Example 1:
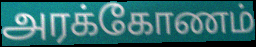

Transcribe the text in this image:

அரக்கோணம்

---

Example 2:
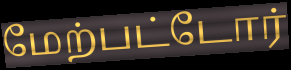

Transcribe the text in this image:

மேற்பட்டோர்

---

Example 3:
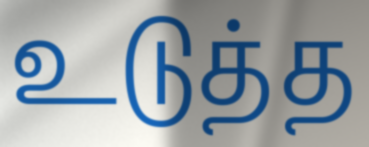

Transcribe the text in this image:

உடுத்த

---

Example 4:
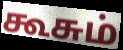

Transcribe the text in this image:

கூசும்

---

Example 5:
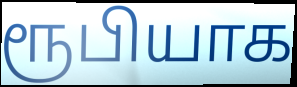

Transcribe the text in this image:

ரூபியாக